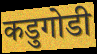
कडुगोडी